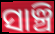
ସାଞ୍ଚି